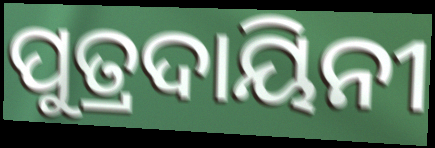
ପୁତ୍ରଦାୟିନୀ